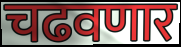
चढवणार